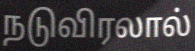
நடுவிரலால்